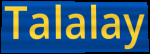
Talalay